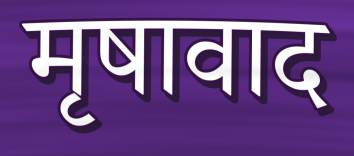
मृषावाद